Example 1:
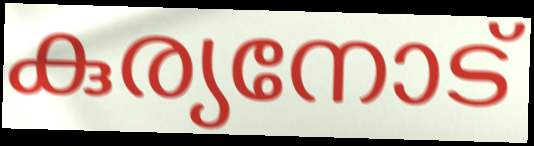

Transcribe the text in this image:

കുര്യനോട്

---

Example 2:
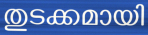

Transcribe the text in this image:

തുടക്കമായി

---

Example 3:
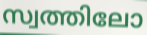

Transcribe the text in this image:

സ്വത്തിലോ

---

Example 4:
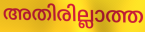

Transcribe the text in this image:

അതിരില്ലാത്ത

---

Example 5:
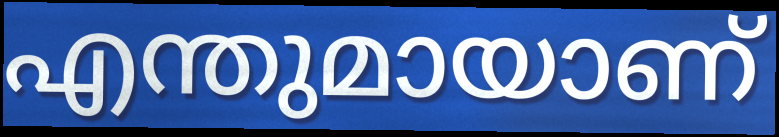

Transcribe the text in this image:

എന്തുമായാണ്